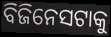
ବିଜିନେସଟାକୁ